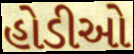
હોડીઓ